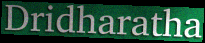
Dridharatha